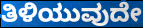
ತಿಳಿಯುವುದೇ